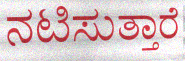
ನಟಿಸುತ್ತಾರೆ